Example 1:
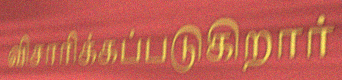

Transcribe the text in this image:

விசாரிக்கப்படுகிறார்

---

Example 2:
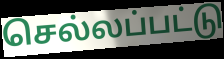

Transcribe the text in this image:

செல்லப்பட்டு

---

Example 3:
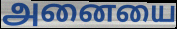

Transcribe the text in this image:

அனையை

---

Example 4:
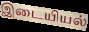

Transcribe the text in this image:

இடையியல்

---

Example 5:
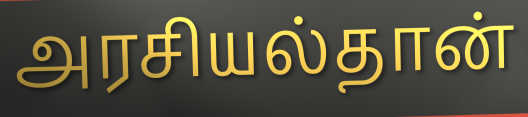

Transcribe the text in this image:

அரசியல்தான்